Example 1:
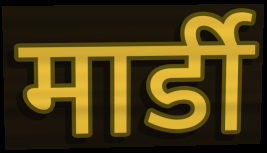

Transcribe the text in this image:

मार्डी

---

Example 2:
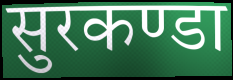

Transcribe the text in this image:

सुरकण्डा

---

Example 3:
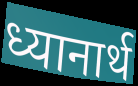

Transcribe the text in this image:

ध्यानार्थ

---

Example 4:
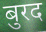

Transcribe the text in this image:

बुरद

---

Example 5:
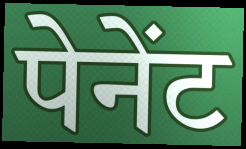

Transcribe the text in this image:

पेनेंट